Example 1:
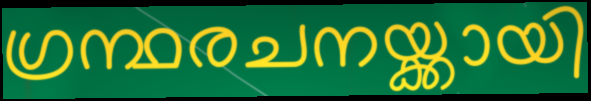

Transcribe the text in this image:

ഗ്രന്ഥരചനയ്ക്കായി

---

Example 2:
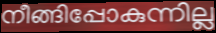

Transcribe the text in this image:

നീങ്ങിപ്പോകുന്നില്ല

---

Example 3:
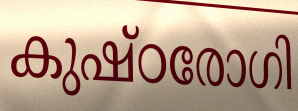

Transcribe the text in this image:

കുഷ്ഠരോഗി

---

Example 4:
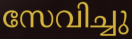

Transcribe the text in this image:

സേവിച്ചു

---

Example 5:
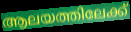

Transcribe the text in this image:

ആലയത്തിലേക്ക്